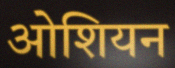
ओशियन